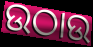
ଉଠାଉ